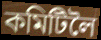
কমিটিলৈ